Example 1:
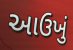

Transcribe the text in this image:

આઉખું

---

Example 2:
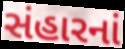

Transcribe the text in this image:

સંહારનાં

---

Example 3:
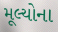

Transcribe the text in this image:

મૂલ્‍યોના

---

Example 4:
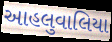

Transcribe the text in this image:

આહલુવાલિયા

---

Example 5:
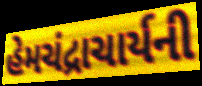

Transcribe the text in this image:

હેમચંદ્રાચાર્યની